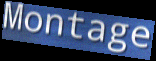
Montage